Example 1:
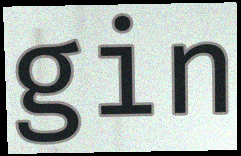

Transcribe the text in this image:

gin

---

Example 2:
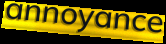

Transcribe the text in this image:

annoyance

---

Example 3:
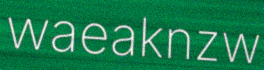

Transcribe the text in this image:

waeaknzw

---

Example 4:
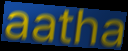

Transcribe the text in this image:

aatha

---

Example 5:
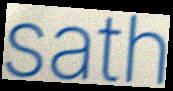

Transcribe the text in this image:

sath